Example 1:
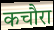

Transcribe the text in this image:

कचौरा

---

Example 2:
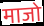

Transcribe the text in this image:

माजो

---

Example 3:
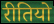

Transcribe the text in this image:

रीतियो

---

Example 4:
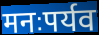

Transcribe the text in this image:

मनःपर्यव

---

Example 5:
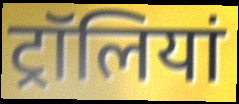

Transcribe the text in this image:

ट्रॉलियां